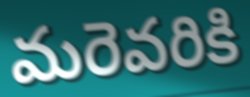
మరెవరికి